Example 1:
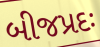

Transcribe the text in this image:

બીજપ્રદઃ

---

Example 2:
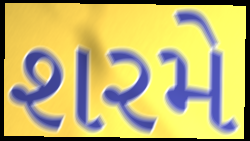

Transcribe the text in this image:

શરમે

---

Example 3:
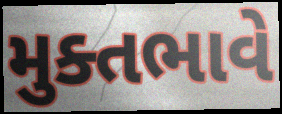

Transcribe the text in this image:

મુક્તભાવે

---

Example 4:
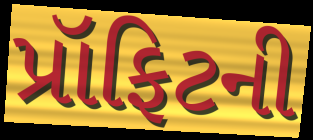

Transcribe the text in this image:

પ્રૉફિટની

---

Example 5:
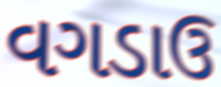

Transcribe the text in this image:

વગડાઉ